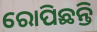
ରୋପିଛନ୍ତି